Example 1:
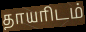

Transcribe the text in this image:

தாயரிடம்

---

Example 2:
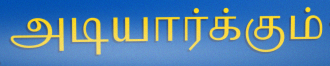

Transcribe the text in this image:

அடியார்க்கும்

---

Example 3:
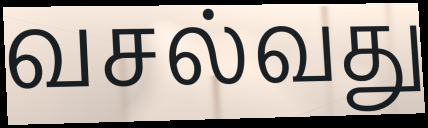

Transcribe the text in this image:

வசல்வது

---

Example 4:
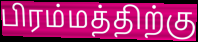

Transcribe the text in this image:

பிரம்மத்திற்கு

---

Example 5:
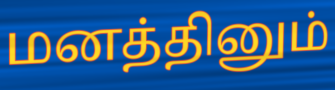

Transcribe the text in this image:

மனத்தினும்